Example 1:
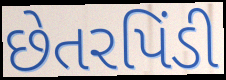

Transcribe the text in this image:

છેતરપિંડી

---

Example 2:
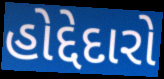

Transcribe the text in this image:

હોદ્દેદારો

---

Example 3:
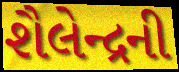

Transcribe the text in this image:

શૈલેન્દ્રની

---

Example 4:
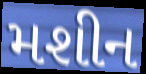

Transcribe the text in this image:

મશીન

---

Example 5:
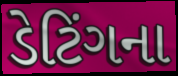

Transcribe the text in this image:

ડેટિંગના